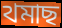
থমাছ